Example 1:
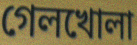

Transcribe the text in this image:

গেলখোলা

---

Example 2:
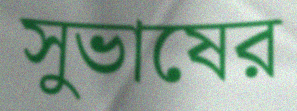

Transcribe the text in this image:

সুভাষের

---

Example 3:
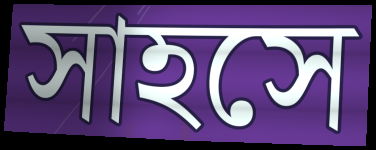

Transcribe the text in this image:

সাহসে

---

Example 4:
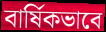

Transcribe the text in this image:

বার্ষিকভাবে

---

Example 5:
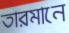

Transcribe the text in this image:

তারমানে